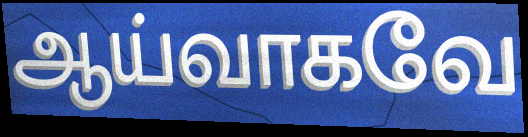
ஆய்வாகவே